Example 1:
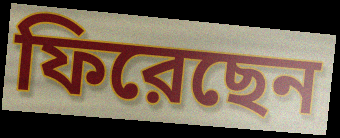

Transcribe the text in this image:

ফিরেছেন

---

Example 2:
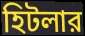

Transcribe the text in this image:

হিটলার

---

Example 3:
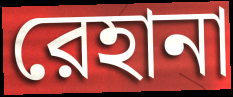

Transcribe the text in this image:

রেহানা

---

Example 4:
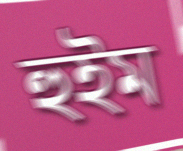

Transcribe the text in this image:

হুইম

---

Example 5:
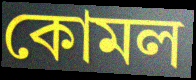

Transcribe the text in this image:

কোমল